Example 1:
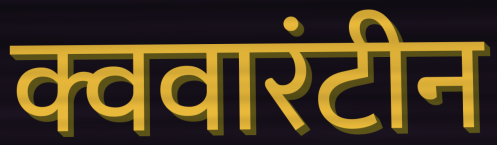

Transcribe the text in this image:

क्ववारंटीन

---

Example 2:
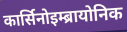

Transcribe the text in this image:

कार्सिनोइम्ब्रायोनिक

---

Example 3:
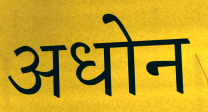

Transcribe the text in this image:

अधोन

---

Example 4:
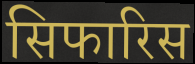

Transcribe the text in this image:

सिफारिस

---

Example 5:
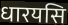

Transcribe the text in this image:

धारयसि